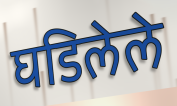
घडिलेले